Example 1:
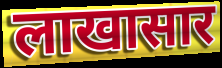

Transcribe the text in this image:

लाखासार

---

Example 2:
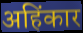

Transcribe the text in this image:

अहिंकार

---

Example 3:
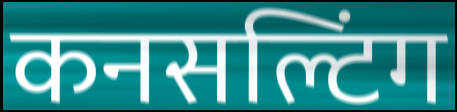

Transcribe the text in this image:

कनसल्टिंग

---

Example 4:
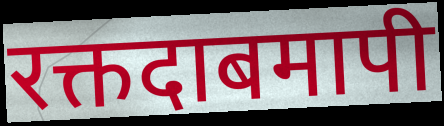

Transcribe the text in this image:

रक्तदाबमापी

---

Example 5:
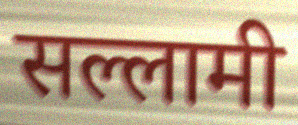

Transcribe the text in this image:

सल्लामी